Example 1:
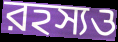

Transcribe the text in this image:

রহস্যও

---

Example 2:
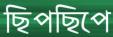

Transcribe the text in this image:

ছিপছিপে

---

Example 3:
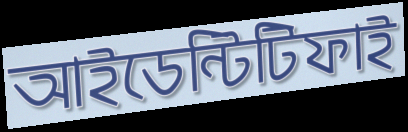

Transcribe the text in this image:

আইডেন্টিটিফাই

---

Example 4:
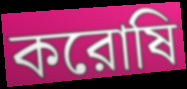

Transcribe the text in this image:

করোষি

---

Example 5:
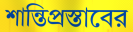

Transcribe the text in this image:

শান্তিপ্রস্তাবের